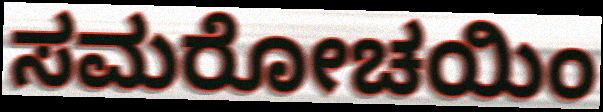
ಸಮರೋಚಯಿಂ